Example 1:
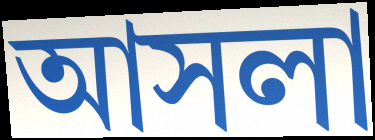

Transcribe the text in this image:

আসলা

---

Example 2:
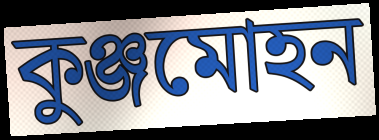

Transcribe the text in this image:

কুঞ্জমোহন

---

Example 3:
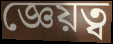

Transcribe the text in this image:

জ্ঞেয়ত্ব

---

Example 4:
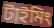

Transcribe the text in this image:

টাইমিং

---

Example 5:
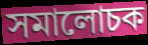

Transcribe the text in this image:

সমালোচক